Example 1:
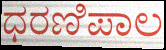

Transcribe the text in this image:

ಧರಣಿಪಾಲ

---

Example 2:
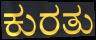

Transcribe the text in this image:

ಕುರತು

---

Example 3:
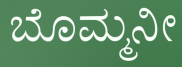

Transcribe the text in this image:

ಬೊಮ್ಮನೀ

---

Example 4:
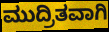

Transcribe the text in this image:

ಮುದ್ರಿತವಾಗಿ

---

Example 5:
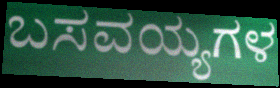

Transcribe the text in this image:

ಬಸವಯ್ಯಗಳ